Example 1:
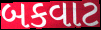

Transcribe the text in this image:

બકવાટ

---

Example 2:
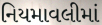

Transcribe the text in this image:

નિયમાવલીમાં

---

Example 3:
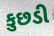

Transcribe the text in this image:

કુછડી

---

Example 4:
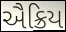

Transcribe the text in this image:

ઐક્રિય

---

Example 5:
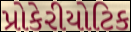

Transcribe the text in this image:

પ્રોકેરીયોટિક